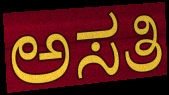
ಅಸತಿ